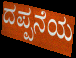
ದಪ್ಪನೆಯ